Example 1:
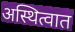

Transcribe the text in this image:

अस्थित्वात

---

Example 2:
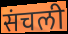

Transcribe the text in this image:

संचली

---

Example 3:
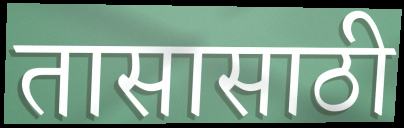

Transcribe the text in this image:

तासासाठी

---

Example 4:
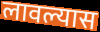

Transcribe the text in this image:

लावल्यास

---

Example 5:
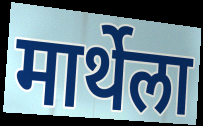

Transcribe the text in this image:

मार्थेला